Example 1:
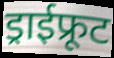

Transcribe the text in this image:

ड्राईफ्रूट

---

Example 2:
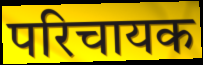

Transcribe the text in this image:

परिचायक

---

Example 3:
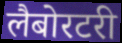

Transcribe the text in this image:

लैबोरटरी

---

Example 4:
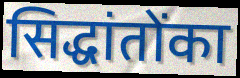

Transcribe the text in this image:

सिद्धांतोंका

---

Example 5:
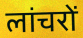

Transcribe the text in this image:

लांचरों